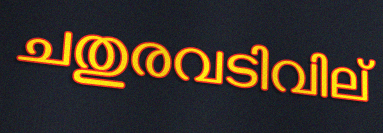
ചതുരവടിവില്